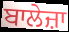
ਬਾਲੇਜ਼ਾ